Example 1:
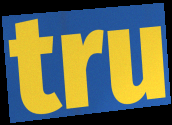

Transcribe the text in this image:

tru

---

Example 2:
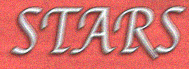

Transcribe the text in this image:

STARS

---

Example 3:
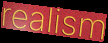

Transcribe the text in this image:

realism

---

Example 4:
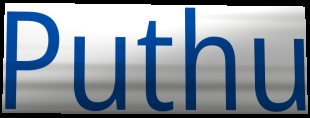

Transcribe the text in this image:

Puthu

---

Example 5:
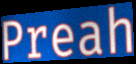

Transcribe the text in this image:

Preah